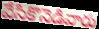
వేసికొనెడివారు